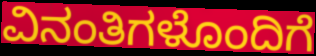
ವಿನಂತಿಗಳೊಂದಿಗೆ